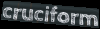
cruciform